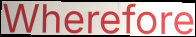
Wherefore